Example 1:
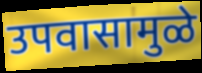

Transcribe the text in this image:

उपवासामुळे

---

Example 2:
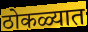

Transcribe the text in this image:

ठोकळ्यात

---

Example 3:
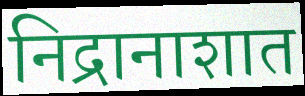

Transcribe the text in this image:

निद्रानाशात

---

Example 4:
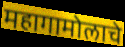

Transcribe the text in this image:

महागामोलाचे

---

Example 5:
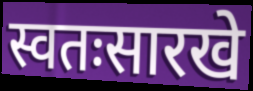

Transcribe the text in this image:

स्वतःसारखे